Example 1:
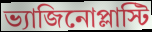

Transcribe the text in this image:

ভ্যাজিনোপ্লাস্টি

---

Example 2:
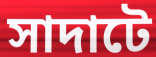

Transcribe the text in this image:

সাদাটে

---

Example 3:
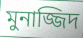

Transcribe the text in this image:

মুনাজ্জিদ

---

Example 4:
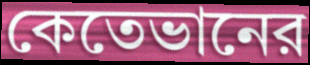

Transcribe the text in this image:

কেতেভানের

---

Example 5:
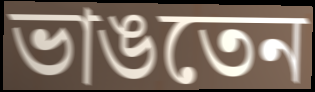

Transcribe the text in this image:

ভাঙতেন